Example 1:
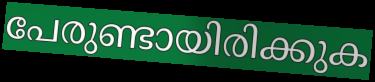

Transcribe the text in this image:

പേരുണ്ടായിരിക്കുക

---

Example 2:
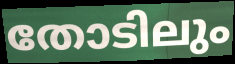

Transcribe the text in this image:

തോടിലും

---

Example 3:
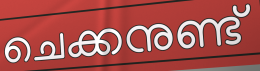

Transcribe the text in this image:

ചെക്കനുണ്ട്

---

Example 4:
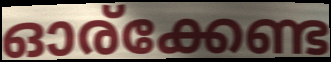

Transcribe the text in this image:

ഓര്ക്കേണ്ട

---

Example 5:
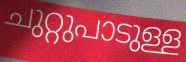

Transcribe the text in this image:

ചുറ്റുപാടുള്ള